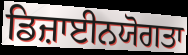
ਡਿਜ਼ਾਈਨਯੋਗਤਾ